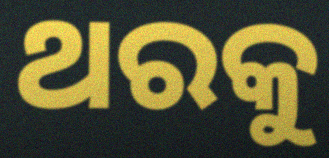
ଥରକୁ